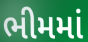
ભીમમાં